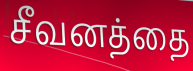
சீவனத்தை